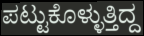
ಪಟ್ಟುಕೊಳ್ಳುತ್ತಿದ್ದ